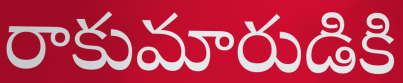
రాకుమారుడికి